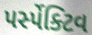
પર્સ્પેક્ટિવ